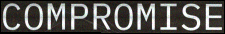
COMPROMISE